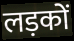
लड़कों